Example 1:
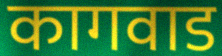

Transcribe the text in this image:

कागवाड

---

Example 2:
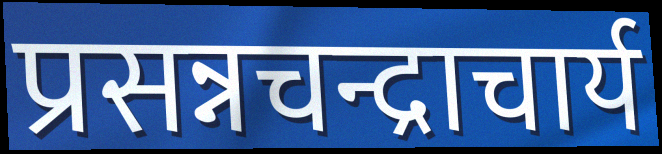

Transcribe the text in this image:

प्रसन्नचन्द्राचार्य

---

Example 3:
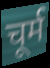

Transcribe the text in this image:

चूर्म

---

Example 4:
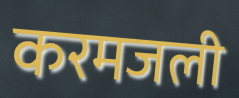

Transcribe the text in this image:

करमजली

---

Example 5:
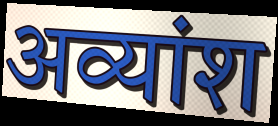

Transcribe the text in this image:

अव्यांश